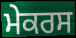
ਮੇਕਰਸ